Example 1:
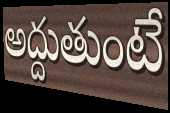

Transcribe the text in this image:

అద్దుతుంటే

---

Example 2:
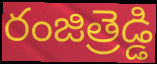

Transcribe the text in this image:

రంజిత్రెడ్డి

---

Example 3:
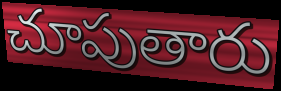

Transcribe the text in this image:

చూపుతారు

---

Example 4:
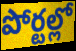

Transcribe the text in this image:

పోర్టల్లో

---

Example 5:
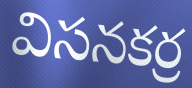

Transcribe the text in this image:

విసనకర్ర